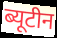
ब्यूटीन